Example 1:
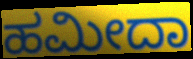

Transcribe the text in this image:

ಹಮೀದಾ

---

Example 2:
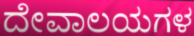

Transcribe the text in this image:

ದೇವಾಲಯಗಳ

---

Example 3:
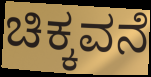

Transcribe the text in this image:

ಚಿಕ್ಕವನೆ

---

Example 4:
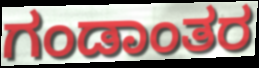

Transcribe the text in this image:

ಗಂಡಾಂತರ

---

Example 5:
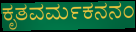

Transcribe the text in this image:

ಕೃತವರ್ಮಕನನಂ